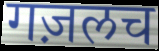
गज़लच